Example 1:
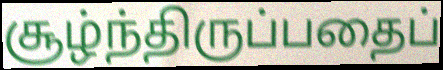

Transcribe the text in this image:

சூழ்ந்திருப்பதைப்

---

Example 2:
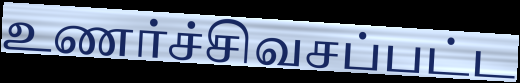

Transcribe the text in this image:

உணர்ச்சிவசப்பட்ட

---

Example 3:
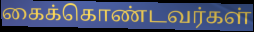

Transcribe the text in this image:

கைக்கொண்டவர்கள்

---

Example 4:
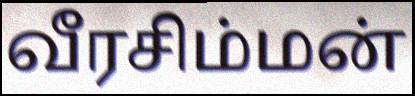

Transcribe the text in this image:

வீரசிம்மன்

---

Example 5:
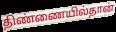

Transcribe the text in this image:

திண்ணையில்தான்